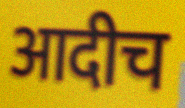
आदीच